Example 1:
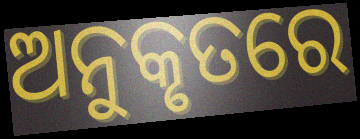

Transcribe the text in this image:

ଅନୁକୃତରେ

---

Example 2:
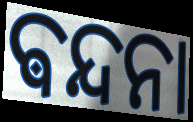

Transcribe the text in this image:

ଵନ୍ଦନା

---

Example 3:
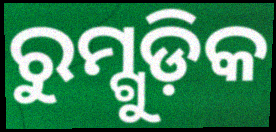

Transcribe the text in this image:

ରୁମ୍ଗୁଡ଼ିକ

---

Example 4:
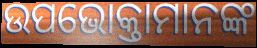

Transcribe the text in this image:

ଉପଭୋକ୍ତାମାନଙ୍କ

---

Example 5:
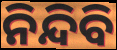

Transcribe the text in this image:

ନିନ୍ଦିବି